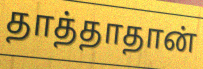
தாத்தாதான்